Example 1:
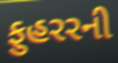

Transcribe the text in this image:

ફુહરરની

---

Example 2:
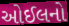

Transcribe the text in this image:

ઓઈલનો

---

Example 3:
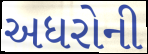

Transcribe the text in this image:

અધરોની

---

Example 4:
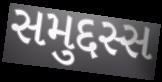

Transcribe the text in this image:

સમુદ્દસ્સ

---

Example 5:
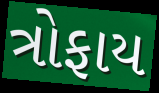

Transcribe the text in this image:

ત્રોફાય